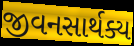
જીવનસાર્થક્ય